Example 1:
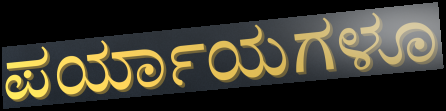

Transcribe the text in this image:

ಪರ್ಯಾಯಗಳೂ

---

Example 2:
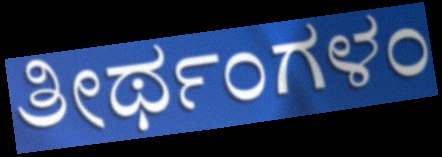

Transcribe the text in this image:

ತೀರ್ಥಂಗಳಂ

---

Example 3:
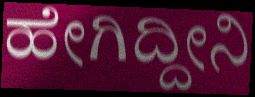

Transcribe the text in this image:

ಹೇಗಿದ್ದೀನಿ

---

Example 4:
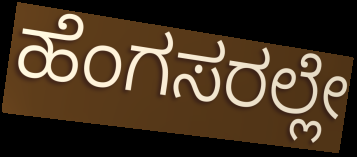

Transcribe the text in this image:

ಹೆಂಗಸರಲ್ಲೇ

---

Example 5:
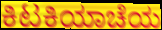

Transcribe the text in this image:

ಕಿಟಕಿಯಾಚೆಯ